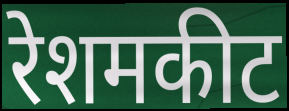
रेशमकीट